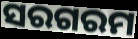
ସରଗରମ